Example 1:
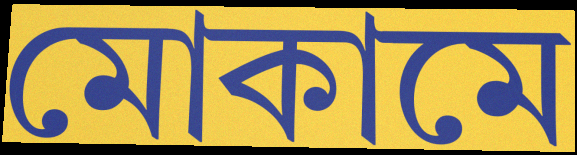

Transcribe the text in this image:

মোকামে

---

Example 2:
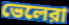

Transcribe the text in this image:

ভেলেরা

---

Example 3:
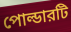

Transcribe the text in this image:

পোল্ডারটি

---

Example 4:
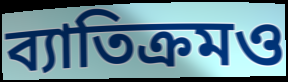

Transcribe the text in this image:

ব্যাতিক্রমও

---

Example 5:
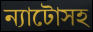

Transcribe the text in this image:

ন্যাটোসহ